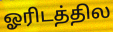
ஓரிடத்தில